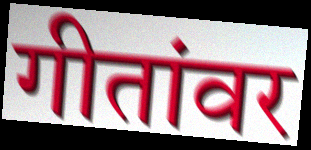
गीतांवर